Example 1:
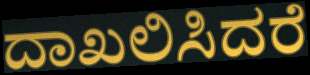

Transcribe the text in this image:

ದಾಖಲಿಸಿದರೆ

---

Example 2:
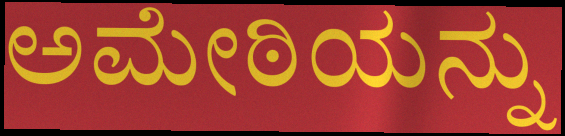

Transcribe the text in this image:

ಅಮೇಠಿಯನ್ನು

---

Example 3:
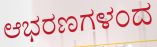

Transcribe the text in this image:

ಆಭರಣಗಳಂದ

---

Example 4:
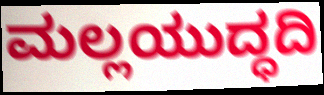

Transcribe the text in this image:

ಮಲ್ಲಯುದ್ಧದಿ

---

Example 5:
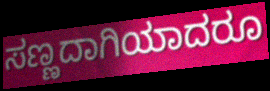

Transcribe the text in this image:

ಸಣ್ಣದಾಗಿಯಾದರೂ